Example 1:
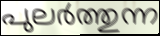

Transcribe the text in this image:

പുലർത്തുന്ന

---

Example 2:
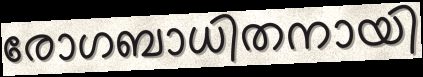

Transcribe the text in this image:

രോഗബാധിതനായി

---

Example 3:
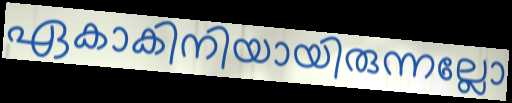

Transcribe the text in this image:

ഏകാകിനിയായിരുന്നല്ലോ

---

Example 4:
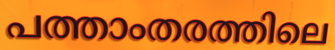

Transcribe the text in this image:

പത്താംതരത്തിലെ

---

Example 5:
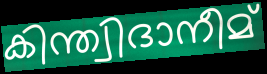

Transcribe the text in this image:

കിന്ത്വിദാനീമ്